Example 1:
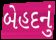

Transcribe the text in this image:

બેહદનું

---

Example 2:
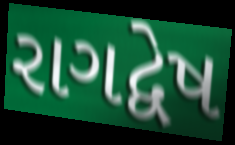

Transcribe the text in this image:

રાગદ્વેષ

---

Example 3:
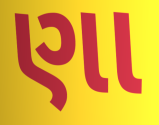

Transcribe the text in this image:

ણા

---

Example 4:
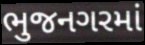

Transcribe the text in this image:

ભુજનગરમાં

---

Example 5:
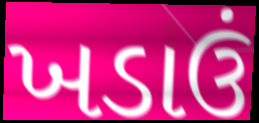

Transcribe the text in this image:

ખડાઉં